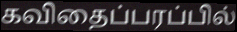
கவிதைப்பரப்பில்